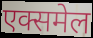
एक्समेल